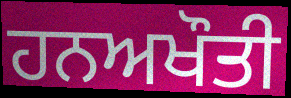
ਹਨਅਖੌਤੀ